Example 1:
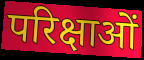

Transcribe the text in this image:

परिक्षाओं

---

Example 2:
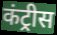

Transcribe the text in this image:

कंट्रीस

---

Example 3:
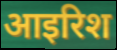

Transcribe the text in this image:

आइरिश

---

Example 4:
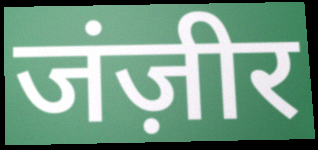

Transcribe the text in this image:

जंज़ीर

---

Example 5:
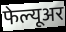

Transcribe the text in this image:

फेल्यूअर